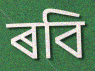
ৰবি